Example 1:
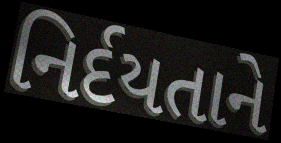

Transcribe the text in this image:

નિર્દયતાને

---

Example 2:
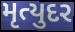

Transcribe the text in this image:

મૃત્યુદર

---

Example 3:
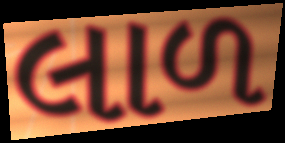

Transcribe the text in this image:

લાળ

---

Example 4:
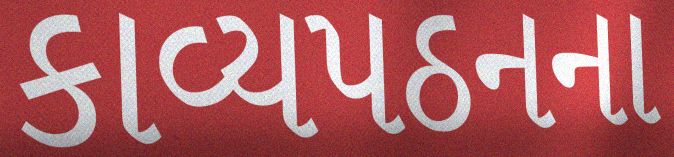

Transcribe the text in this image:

કાવ્યપઠનના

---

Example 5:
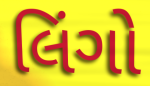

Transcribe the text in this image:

લિંગો